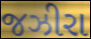
જઝીરા